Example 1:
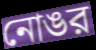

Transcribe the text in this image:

নোঙর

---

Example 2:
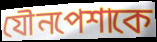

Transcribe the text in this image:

যৌনপেশাকে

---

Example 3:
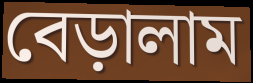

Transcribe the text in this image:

বেড়ালাম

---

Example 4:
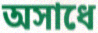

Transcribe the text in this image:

অসাধে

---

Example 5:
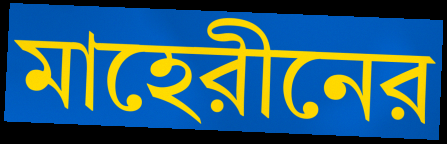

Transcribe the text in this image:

মাহেরীনের